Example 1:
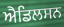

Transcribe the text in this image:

ਐਡਿਲਸਨ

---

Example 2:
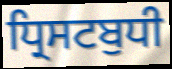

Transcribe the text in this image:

ਧ੍ਰਿਸਟਬੁਧੀ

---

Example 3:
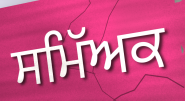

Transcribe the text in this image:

ਸਮਿੱਅਕ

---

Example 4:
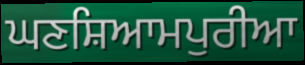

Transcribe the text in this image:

ਘਣਸ਼ਿਆਮਪੁਰੀਆ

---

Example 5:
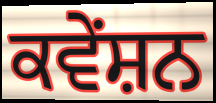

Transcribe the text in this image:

ਕਵੇਂਸ਼ਨ